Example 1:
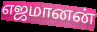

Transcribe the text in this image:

எஜமானன்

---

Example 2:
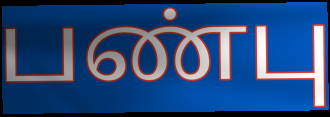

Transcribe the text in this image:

பண்பு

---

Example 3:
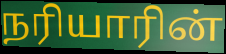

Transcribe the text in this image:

நரியாரின்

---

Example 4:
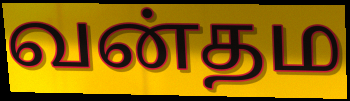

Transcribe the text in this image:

வன்தம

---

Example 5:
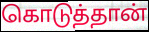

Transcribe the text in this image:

கொடுத்தான்